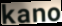
kano